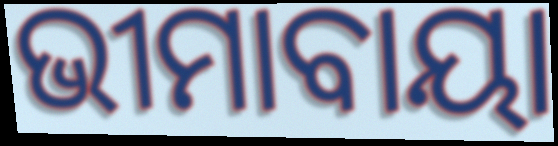
ଭୀମାବାୟା